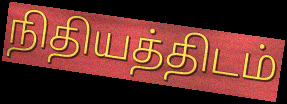
நிதியத்திடம்